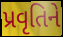
પ્રવૃતિને